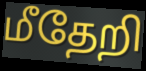
மீதேறி